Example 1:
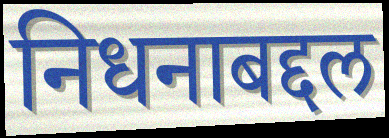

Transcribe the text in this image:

निधनाबद्दल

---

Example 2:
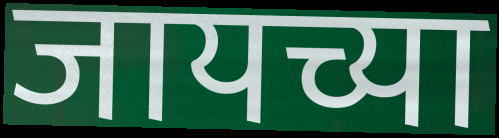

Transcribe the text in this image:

जायच्या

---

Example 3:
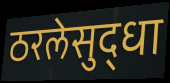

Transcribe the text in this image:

ठरलेसुद्धा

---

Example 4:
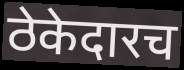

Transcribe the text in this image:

ठेकेदारच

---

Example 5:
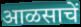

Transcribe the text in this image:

आळसाचें